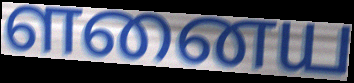
ளனைய